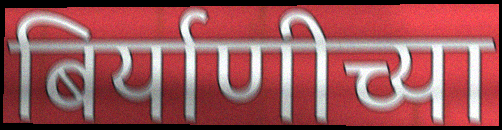
बिर्याणीच्या